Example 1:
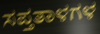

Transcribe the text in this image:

ಸಪ್ತತಾಳಗಳ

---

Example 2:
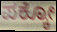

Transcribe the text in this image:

ಪಕ್ಕೋ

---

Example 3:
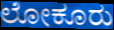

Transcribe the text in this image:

ಲೋಕೂರು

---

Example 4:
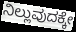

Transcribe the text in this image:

ನಿಲ್ಲುವುದಕ್ಕೇ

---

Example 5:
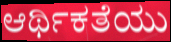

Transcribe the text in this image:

ಆರ್ಥಿಕತೆಯು